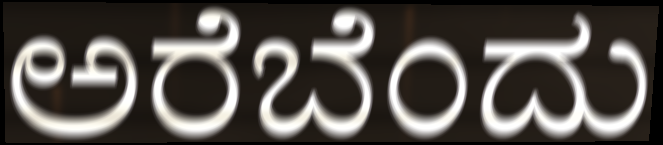
ಅರೆಬೆಂದು